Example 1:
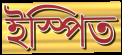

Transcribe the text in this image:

ইস্পিত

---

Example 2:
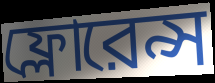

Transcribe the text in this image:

ফ্লোরেন্স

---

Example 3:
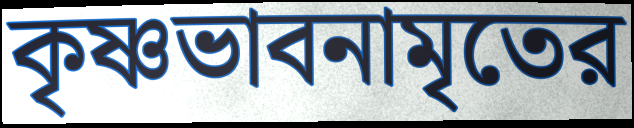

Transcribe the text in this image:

কৃষ্ণভাবনামৃতের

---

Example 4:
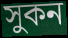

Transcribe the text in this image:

সুকন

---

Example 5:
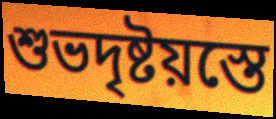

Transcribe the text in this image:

শুভদৃষ্টয়স্তে